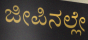
ಜೀಪಿನಲ್ಲೇ